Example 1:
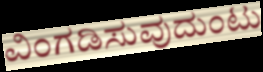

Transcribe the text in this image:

ವಿಂಗಡಿಸುವುದುಂಟು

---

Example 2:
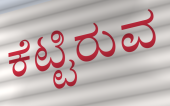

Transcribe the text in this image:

ಕೆಟ್ಟಿರುವ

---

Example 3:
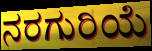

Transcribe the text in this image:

ನರಗುರಿಯೆ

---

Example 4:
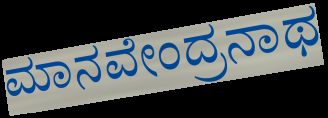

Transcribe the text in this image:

ಮಾನವೇಂದ್ರನಾಥ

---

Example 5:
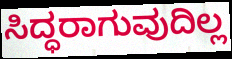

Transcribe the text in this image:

ಸಿದ್ಧರಾಗುವುದಿಲ್ಲ